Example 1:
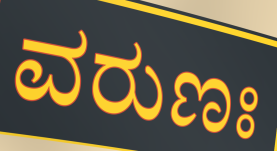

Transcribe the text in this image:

ವರುಣಃ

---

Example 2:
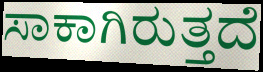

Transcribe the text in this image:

ಸಾಕಾಗಿರುತ್ತದೆ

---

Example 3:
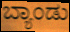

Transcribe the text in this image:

ಬ್ಯಾಂಡು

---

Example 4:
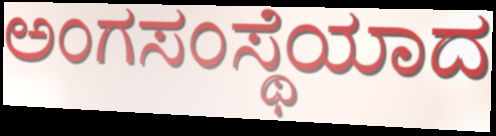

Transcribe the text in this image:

ಅಂಗಸಂಸ್ಥೆಯಾದ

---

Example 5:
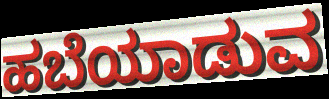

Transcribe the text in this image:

ಹಬೆಯಾಡುವ